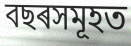
বছৰসমূহত